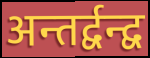
अन्तर्द्वन्द्व